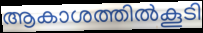
ആകാശത്തിൽകൂടി